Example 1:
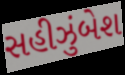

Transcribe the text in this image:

સહીઝુંબેશ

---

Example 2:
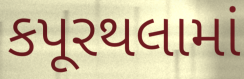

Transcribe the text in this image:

કપૂરથલામાં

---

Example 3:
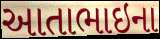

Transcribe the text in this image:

આતાભાઇના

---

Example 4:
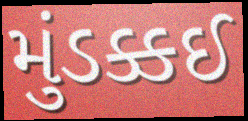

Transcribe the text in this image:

મુંડક્કઈ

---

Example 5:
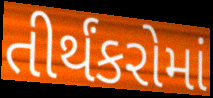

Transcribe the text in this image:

તીર્થંકરોમાં